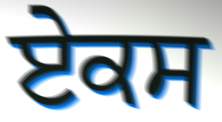
ਏਕਸ